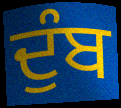
ਦੁੰਬ